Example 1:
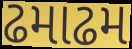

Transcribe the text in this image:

ઢમાઢમ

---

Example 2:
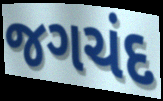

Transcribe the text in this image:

જગચંદ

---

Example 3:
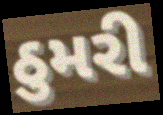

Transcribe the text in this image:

ઠુમરી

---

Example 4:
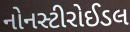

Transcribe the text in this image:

નોનસ્ટીરોઈડલ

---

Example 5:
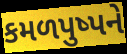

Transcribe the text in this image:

કમળપુષ્પને